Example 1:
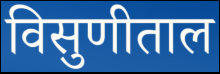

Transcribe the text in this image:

विसुणीताल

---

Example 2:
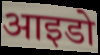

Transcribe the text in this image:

आइडो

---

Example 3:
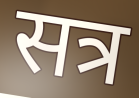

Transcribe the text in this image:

सत्र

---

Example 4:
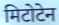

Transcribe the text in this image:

मिटोटेन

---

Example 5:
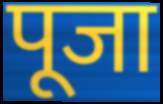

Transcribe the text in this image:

पूजा